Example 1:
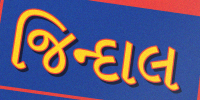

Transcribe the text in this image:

જિન્દાલ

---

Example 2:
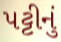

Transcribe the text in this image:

પટ્ટીનું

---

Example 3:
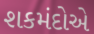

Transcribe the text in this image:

શકમંદોએ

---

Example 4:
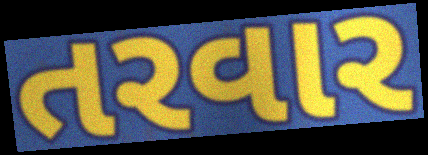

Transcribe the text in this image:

તરવાર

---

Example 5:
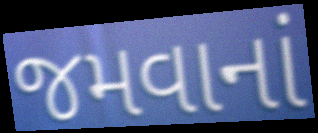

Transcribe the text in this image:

જમવાનાં